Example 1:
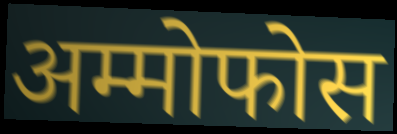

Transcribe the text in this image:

अम्मोफोस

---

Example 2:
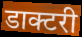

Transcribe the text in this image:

डाक्टरी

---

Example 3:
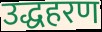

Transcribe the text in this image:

उद्धहरण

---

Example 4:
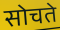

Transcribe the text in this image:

सोचते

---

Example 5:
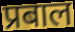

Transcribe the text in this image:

प्रबाल